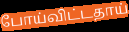
போய்விட்டதாய்